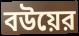
বউয়ের